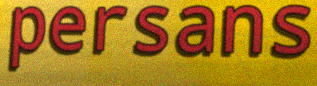
persans